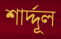
শার্দ্দূল